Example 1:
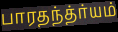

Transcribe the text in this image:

பாரதந்த்ர்யம்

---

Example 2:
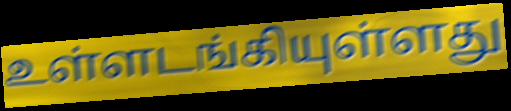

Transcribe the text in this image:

உள்ளடங்கியுள்ளது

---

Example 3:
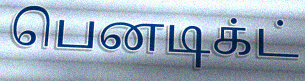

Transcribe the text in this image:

பெனடிக்ட்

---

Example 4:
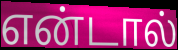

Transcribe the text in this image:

என்டால்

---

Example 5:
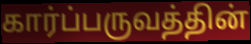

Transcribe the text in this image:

கார்ப்பருவத்தின்